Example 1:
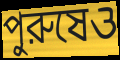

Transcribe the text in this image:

পুৰুষেও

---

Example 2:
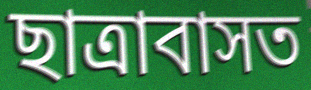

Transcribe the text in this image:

ছাত্ৰাবাসত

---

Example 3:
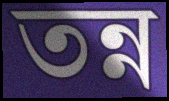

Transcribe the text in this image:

তন্ন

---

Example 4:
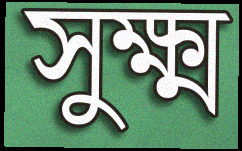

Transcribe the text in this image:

সুক্ষ্ম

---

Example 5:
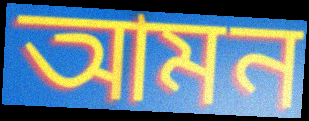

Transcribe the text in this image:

আমন